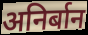
अनिर्बान